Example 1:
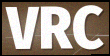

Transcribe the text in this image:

VRC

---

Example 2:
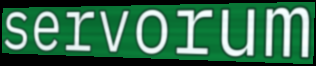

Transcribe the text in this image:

servorum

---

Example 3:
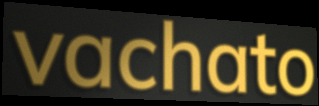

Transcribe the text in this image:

vachato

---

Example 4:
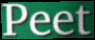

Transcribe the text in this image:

Peet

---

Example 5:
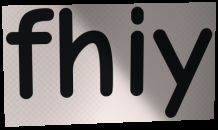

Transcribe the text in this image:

fhiy